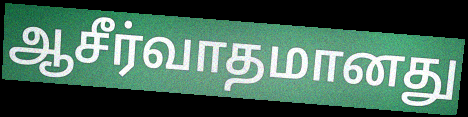
ஆசீர்வாதமானது